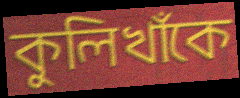
কুলিখাঁকে